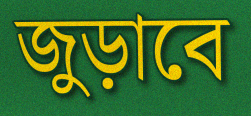
জুড়াবে